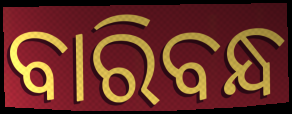
ବାରିବନ୍ଧ